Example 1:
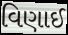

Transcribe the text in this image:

વિણાઈ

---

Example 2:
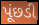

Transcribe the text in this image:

પૂંછડી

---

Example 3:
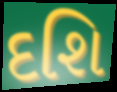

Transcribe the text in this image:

દશિ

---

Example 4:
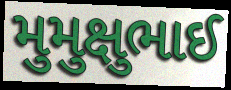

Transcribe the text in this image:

મુમુક્ષુભાઈ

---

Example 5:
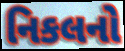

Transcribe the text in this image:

નિકલનો